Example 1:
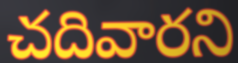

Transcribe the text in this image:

చదివారని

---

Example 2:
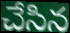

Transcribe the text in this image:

చేసిన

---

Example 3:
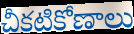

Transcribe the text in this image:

చీకటికోణాలు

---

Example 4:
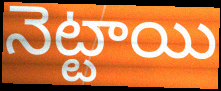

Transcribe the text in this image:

నెట్టాయి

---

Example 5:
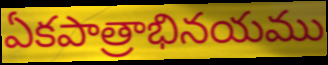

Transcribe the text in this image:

ఏకపాత్రాభినయము